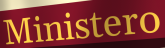
Ministero